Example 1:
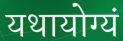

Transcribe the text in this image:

यथायोग्यं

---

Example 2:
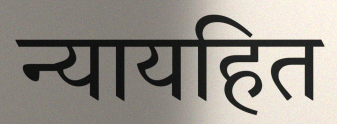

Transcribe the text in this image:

न्यायहित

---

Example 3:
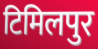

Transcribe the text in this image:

टिमिलपुर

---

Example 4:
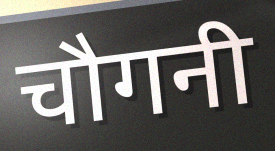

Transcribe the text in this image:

चौगनी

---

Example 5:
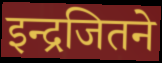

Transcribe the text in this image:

इन्द्रजितने